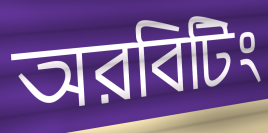
অরবিটিং